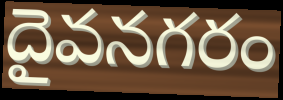
దైవనగరం